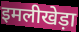
इमलीखेड़ा